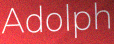
Adolph